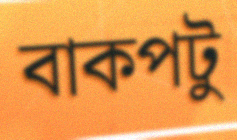
বাকপটু